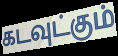
கடவுட்கும்